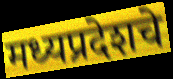
मध्यप्रदेशचे